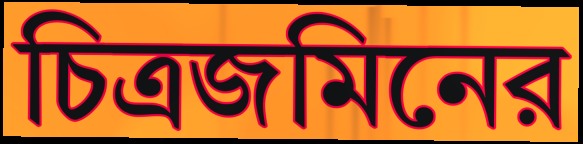
চিত্রজমিনের